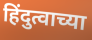
हिंदुत्वाच्या